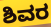
ಶಿವರ